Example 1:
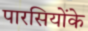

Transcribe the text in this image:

पारसियोंके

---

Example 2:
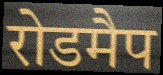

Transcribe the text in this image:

रोडमैप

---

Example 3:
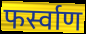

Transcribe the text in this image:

फर्स्वाण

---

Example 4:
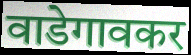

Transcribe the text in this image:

वाडेगावकर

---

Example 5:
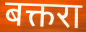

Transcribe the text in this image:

बक्तरा